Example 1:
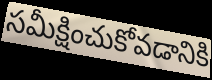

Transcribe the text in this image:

సమీక్షించుకోవడానికి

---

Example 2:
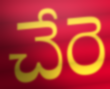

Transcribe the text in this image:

చేరె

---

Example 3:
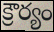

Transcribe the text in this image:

క్రౌర్యం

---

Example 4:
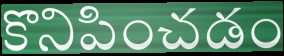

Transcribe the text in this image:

కొనిపించడం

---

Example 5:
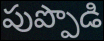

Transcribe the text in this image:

పుప్పొడి